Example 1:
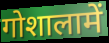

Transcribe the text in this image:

गोशालामें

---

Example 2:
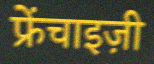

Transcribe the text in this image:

फ्रेंचाइज़ी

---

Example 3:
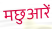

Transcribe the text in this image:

मछुआरें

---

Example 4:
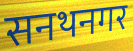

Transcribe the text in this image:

सनथनगर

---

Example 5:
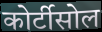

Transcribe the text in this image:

कोर्टीसोल